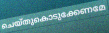
ചെയ്തുകൊടുക്കേണമേ